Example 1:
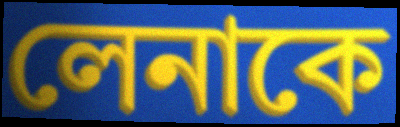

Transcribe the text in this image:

লেনাকে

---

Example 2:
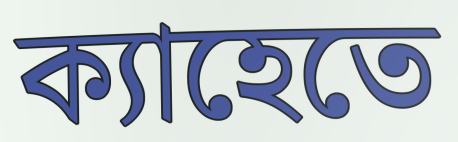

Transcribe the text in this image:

ক্যাহেতে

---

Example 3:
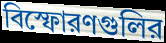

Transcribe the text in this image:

বিস্ফোরণগুলির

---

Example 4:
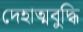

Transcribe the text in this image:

দেহাত্মবুদ্ধি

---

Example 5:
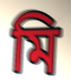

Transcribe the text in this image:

মি